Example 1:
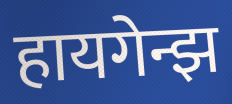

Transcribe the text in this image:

हायगेन्झ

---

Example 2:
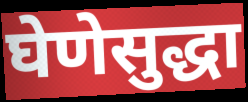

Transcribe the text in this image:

घेणेसुद्धा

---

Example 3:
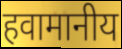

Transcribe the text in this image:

हवामानीय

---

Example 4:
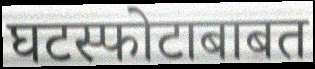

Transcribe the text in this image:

घटस्फोटाबाबत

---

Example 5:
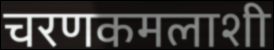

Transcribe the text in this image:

चरणकमलाशी